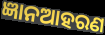
ଜ୍ଞାନଆହରଣ